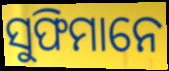
ସୁଫିମାନେ